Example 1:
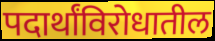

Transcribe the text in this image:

पदार्थांविरोधातील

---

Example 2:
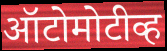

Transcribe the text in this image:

ऑटोमोटीव्ह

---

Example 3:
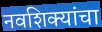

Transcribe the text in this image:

नवशिक्यांचा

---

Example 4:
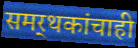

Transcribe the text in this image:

समर्थकांचाही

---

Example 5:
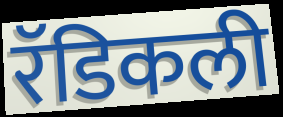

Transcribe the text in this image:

रॅडिकली